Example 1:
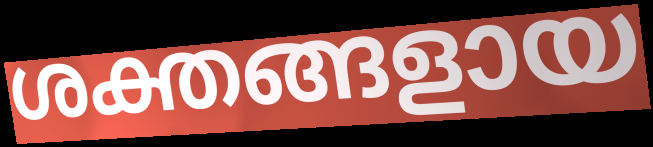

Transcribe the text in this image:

ശക്തങ്ങളായ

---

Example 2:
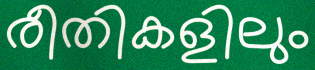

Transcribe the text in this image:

രീതികളിലും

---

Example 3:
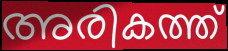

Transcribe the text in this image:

അരികത്ത്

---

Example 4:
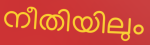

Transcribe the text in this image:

നീതിയിലും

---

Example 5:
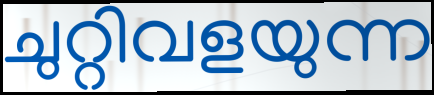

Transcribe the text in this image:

ചുറ്റിവളയുന്ന